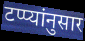
टप्प्यांनुसार